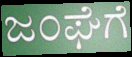
ಜಂಘೆಗೆ